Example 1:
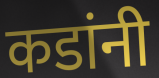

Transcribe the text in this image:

कडांनी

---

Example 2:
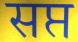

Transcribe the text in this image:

सप्त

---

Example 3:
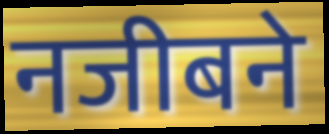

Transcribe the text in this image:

नजीबने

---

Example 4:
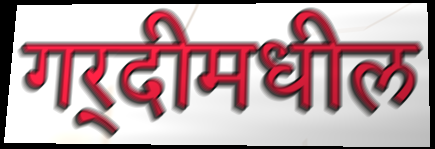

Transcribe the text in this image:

गर्दीमधील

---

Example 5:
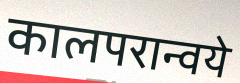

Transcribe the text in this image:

कालपरान्वये